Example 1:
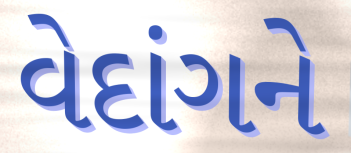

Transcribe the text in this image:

વેદાંગને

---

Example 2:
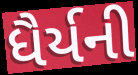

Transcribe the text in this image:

ધૈર્યની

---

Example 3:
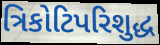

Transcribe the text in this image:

ત્રિકોટિપરિશુદ્ધ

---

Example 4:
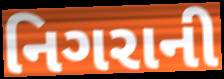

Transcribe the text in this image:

નિગરાની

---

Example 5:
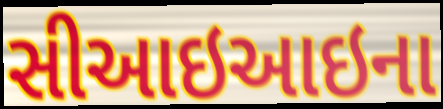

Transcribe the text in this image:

સીઆઇઆઇના